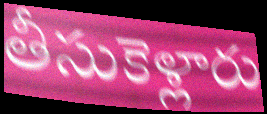
తీసుకెళ్లారు